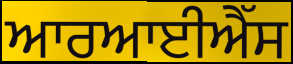
ਆਰਆਈਐੱਸ